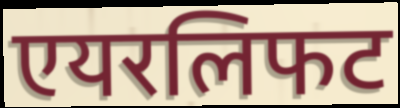
एयरलिफट